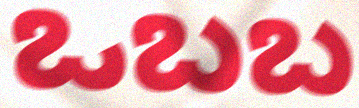
ಒಬಬ